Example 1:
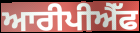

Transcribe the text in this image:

ਆਰੀਪੀਐੱਫ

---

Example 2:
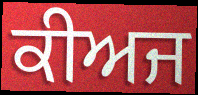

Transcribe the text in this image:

ਕੀਅਜ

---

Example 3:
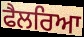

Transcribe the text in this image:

ਫੈਲਰਿਆ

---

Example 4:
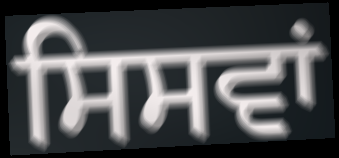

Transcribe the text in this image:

ਸਿਸਵਾਂ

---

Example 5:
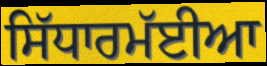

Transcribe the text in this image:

ਸਿੱਧਾਰਮੱਈਆ